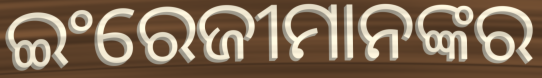
ଇଂରେଜୀମାନଙ୍କର